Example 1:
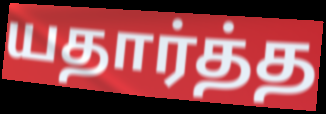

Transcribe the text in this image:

யதார்த்த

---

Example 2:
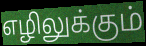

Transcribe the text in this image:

எழிலுக்கும்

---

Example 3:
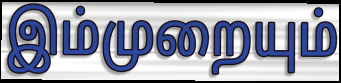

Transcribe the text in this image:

இம்முறையும்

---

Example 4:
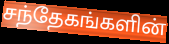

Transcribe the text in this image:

சந்தேகங்களின்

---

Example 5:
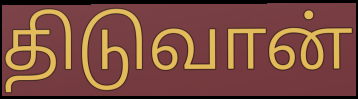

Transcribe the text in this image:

திடுவான்